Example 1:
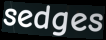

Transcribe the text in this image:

sedges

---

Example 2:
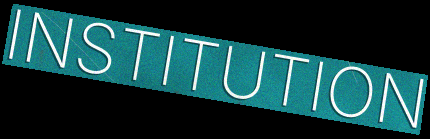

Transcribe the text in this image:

INSTITUTION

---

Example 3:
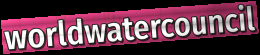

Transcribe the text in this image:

worldwatercouncil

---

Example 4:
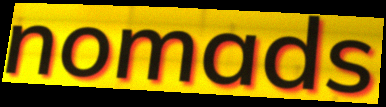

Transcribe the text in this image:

nomads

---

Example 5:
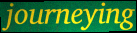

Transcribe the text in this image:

journeying